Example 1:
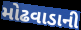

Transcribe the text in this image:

મોઢવાડાની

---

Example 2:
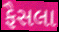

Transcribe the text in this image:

ફૈસલા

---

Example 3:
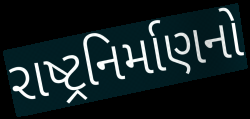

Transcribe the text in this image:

રાષ્ટ્રનિર્માણનો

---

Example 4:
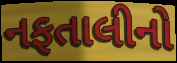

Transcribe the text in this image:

નફતાલીનો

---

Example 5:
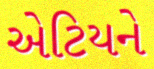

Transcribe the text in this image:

એટિયને